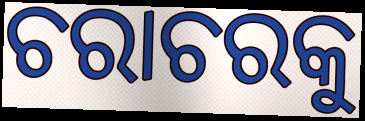
ଚରାଚରକୁ